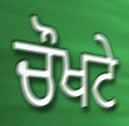
ਚੌਖਟੇ